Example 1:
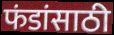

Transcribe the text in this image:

फंडांसाठी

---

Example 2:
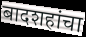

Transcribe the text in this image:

बादशहांचा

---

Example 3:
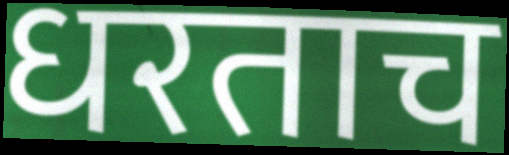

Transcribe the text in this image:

धरताच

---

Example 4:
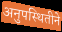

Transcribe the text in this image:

अनुपस्थितीने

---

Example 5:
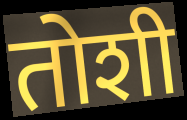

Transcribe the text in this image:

तोशी